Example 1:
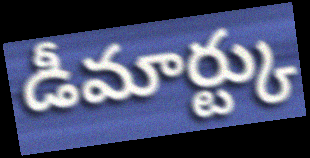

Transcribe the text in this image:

డీమార్ట్కు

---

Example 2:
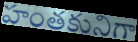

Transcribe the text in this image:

హంతకునిగా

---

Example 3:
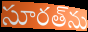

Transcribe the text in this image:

సూరత్‌ను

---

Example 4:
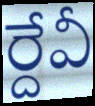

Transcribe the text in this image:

ర్దేవీ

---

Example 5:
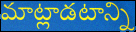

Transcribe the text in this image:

మాట్లాడటాన్ని